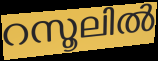
റസൂലിൽ